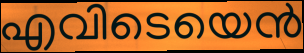
എവിടെയെൻ